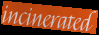
incinerated